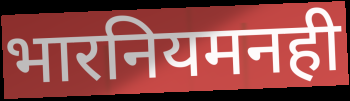
भारनियमनही